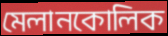
মেলানকোলিক